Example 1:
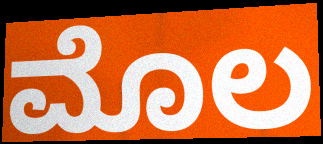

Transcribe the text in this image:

ಮೊಲ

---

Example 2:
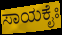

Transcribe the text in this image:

ಸಾಯಕೈಃ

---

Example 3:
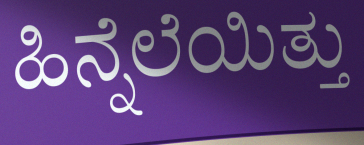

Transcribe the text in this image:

ಹಿನ್ನೆಲೆಯಿತ್ತು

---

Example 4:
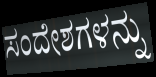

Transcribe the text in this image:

ಸಂದೇಶಗಳನ್ನು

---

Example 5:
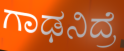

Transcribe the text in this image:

ಗಾಢನಿದ್ರೆ